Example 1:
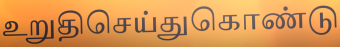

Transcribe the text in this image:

உறுதிசெய்துகொண்டு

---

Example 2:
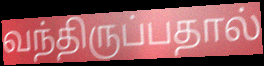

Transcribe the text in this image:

வந்திருப்பதால்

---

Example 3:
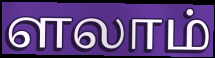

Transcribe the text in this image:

ளலாம்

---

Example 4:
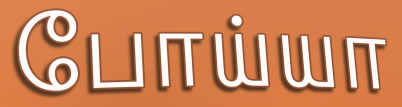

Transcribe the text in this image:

போய்யா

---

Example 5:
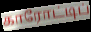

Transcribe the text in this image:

காரோட்டிப்